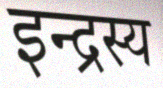
इन्द्रस्य